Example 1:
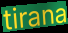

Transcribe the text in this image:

tirana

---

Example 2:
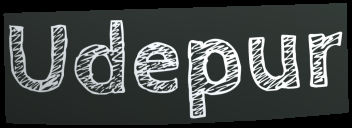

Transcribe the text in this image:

Udepur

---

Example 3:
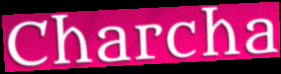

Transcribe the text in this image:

Charcha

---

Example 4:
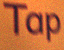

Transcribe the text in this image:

Tap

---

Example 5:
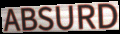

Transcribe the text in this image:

ABSURD